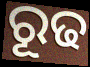
ରୂଢ